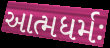
આત્મધર્મઃ